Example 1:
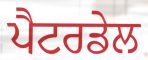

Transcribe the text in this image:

ਪੈਟਰਡੇਲ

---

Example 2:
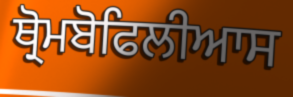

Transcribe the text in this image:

ਥ੍ਰੋਮਬੋਫਿਲੀਆਸ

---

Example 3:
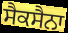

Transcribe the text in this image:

ਸੈਕਸੈਨਾ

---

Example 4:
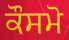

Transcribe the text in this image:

ਕੌਸਮੋ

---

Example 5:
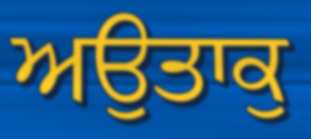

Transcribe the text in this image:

ਅਉਤਾਕੁ